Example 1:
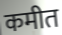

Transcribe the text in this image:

कमीत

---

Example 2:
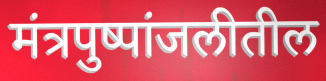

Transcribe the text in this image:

मंत्रपुष्पांजलीतील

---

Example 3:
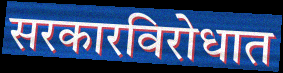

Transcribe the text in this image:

सरकारविरोधात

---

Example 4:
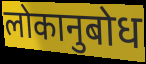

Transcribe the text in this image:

लोकानुबोध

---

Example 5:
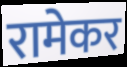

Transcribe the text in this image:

रामेकर